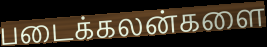
படைக்கலன்களை